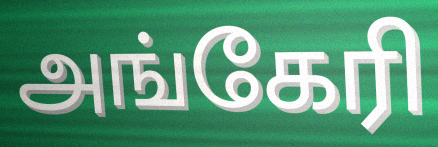
அங்கேரி